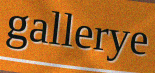
gallerye